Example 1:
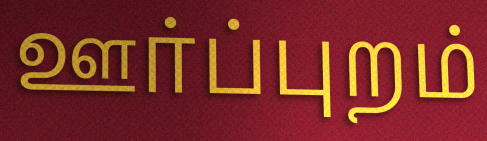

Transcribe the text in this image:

ஊர்ப்புறம்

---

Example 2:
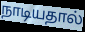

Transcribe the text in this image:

நாடியதால்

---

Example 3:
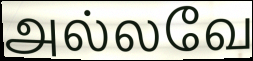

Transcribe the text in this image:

அல்லவே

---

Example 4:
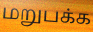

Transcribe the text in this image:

மறுபக்க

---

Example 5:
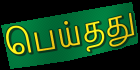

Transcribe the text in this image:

பெய்தது